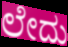
ಲೇದು